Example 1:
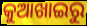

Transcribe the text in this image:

କୁଆଖାଇରୁ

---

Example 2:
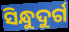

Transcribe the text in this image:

ସିନ୍ଧୁଦୁର୍ଗ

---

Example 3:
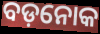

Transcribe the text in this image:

ବଡ଼ନୋକ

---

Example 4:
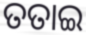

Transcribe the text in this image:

ତତାଇ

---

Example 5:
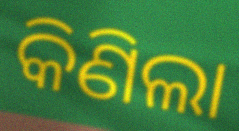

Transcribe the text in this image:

କିଣିଲା